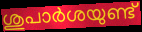
ശുപാർശയുണ്ട്